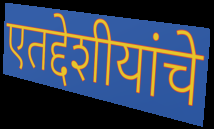
एतद्देशीयांचे